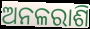
ଅନଳରାଶି